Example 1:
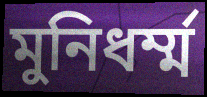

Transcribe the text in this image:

মুনিধর্ম্ম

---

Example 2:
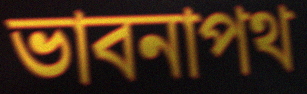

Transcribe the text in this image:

ভাবনাপথ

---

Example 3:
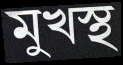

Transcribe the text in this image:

মুখস্থ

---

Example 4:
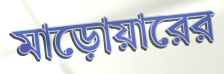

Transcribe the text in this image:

মাড়োয়ারের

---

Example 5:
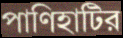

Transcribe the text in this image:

পাণিহাটির